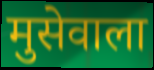
मुसेवाला